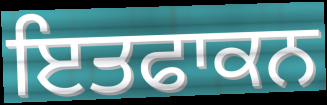
ਇਤਫਾਕਨ